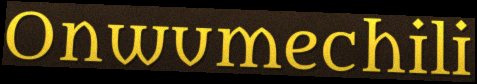
Onwumechili